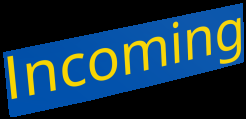
Incoming